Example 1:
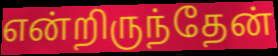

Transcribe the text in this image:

என்றிருந்தேன்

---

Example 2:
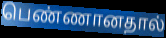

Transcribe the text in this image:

பெண்ணானதால்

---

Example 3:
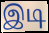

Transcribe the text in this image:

இடி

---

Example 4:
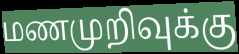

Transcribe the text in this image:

மணமுறிவுக்கு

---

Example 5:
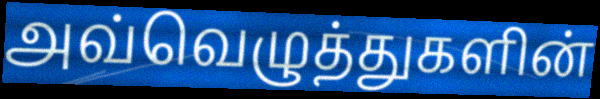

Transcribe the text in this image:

அவ்வெழுத்துகளின்